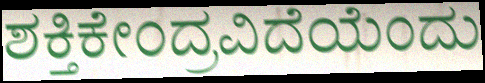
ಶಕ್ತಿಕೇಂದ್ರವಿದೆಯೆಂದು